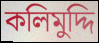
কলিমুদ্দি